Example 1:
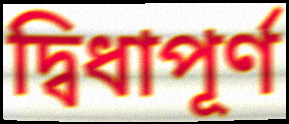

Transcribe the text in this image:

দ্বিধাপূর্ণ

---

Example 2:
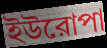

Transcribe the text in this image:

ইউরোপা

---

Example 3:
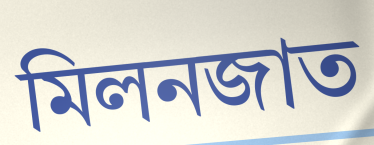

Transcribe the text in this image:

মিলনজাত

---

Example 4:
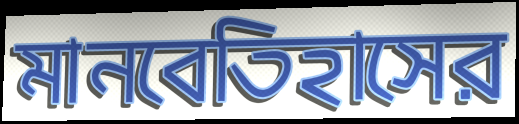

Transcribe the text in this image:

মানবেতিহাসের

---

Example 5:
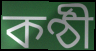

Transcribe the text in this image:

কণ্ঠী